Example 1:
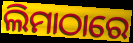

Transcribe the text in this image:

ଲିମାଠାରେ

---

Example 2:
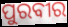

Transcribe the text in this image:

ପୁରବୀର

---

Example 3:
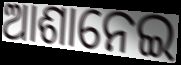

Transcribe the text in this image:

ଆଶାନେଇ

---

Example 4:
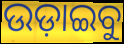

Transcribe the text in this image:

ଉଡ଼ାଇବୁ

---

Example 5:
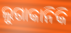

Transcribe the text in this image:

ଲୁଗାକାନିକି